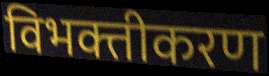
विभक्तीकरण